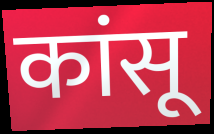
कांसू